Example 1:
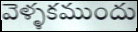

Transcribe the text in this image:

వెళ్ళకముందు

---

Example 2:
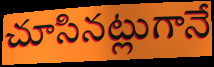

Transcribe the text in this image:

చూసినట్లుగానే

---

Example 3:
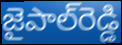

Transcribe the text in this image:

జైపాల్‌రెడ్డి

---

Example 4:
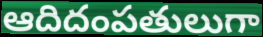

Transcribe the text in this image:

ఆదిదంపతులుగా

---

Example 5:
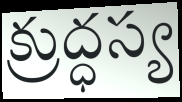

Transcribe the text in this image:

క్రుద్ధస్య